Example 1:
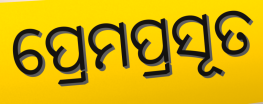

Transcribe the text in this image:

ପ୍ରେମପ୍ରସୂତ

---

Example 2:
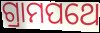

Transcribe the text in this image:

ଗ୍ରାମପଥେ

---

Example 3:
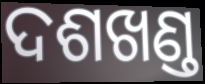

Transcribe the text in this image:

ଦଶଖଣ୍ଡ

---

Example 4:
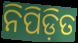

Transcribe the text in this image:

ନିପିଡ଼ିତ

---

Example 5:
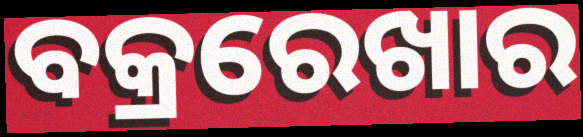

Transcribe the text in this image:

ବକ୍ରରେଖାର